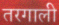
तरगाली